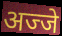
अज्जे